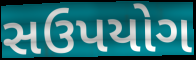
સઉપયોગ